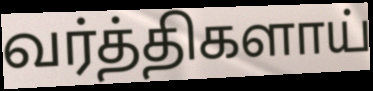
வர்த்திகளாய்